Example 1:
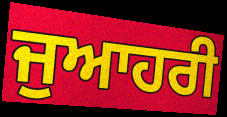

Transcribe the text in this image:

ਜੁਆਹਰੀ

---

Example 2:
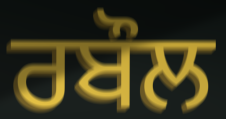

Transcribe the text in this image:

ਰਬੌਲ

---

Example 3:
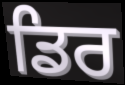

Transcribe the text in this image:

ਡਿਰ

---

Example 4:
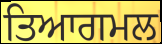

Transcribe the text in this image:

ਤਿਆਗਮਲ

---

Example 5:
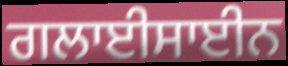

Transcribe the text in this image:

ਗਲਾਈਸਾਈਨ